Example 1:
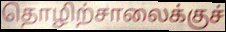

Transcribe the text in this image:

தொழிற்சாலைக்குச்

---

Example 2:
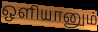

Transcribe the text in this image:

ஒளியானும்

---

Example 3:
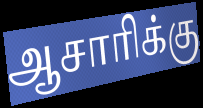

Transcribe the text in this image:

ஆசாரிக்கு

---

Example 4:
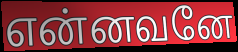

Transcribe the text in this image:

என்னவனே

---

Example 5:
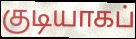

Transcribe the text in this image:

குடியாகப்